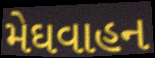
મેઘવાહન